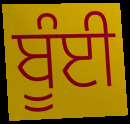
ਬੂੰਈ